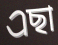
এছা